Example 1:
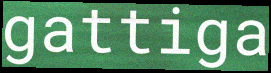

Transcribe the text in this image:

gattiga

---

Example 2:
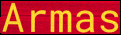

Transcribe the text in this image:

Armas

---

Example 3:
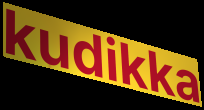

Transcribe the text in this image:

kudikka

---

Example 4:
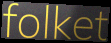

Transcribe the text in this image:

folket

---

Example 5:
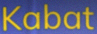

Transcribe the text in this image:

Kabat